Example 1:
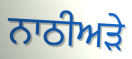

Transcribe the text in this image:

ਨਾਠੀਅੜੇ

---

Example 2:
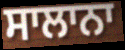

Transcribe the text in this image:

ਸਾਲਾਨਾ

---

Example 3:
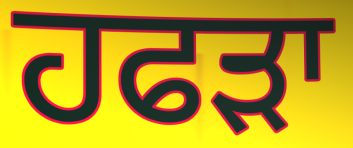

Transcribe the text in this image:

ਹਫੜਾ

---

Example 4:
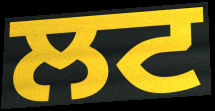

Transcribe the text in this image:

ਲਟ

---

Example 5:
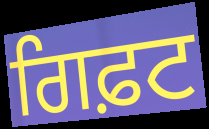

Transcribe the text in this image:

ਗਿਫ਼ਟ